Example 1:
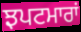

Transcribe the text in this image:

ਝਪਟਮਾਰਾਂ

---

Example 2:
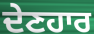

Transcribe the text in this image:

ਦੇਣਹਾਰ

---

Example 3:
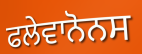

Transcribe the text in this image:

ਫਲੇਵਾਨੋਨਸ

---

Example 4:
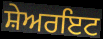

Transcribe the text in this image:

ਸ਼ੇਅਰਇਟ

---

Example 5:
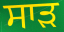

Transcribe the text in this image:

ਸਾਡ਼